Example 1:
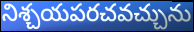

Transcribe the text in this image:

నిశ్చయపరచవచ్చును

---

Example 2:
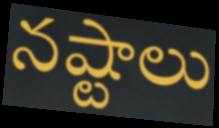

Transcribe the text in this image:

నష్టాలు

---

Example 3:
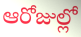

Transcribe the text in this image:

ఆరోజుల్లో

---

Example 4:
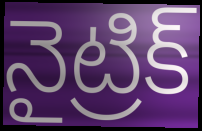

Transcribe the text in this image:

నైట్రిక్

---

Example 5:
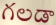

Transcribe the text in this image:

గలడా